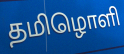
தமிழொளி